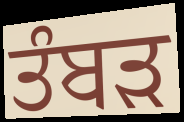
ਤੰਬੜ